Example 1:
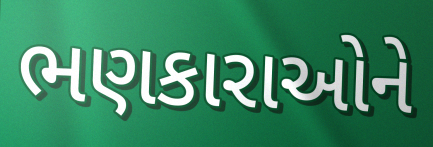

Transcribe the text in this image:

ભણકારાઓને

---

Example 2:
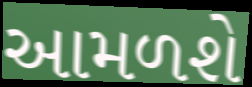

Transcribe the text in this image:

આમળશે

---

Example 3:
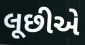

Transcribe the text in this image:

લૂછીએ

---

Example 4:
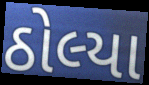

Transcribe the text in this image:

ઠોલ્યા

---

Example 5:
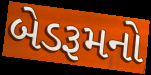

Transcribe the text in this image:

બેડરૂમનો